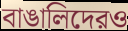
বাঙালিদেরও